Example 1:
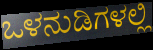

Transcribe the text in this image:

ಒಳನುಡಿಗಳಲ್ಲಿ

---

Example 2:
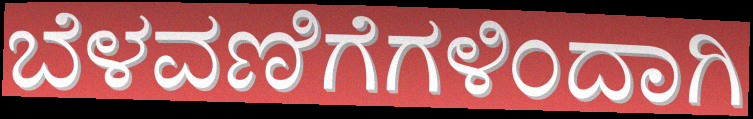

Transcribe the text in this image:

ಬೆಳವಣಿಗೆಗಳಿಂದಾಗಿ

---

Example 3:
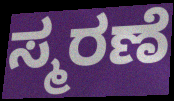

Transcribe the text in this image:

ಸ್ಮರಣೆ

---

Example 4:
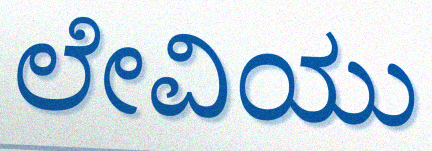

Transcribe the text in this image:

ಲೇವಿಯು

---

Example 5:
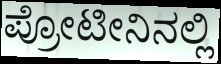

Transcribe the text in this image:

ಪ್ರೋಟೀನಿನಲ್ಲಿ